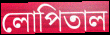
লোপিতাল